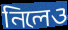
নিলেও